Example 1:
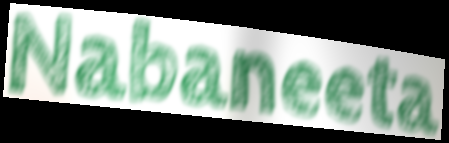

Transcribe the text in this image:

Nabaneeta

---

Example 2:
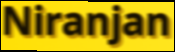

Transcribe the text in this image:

Niranjan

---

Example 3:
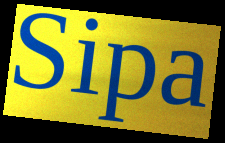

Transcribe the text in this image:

Sipa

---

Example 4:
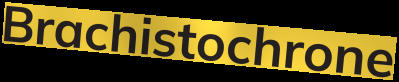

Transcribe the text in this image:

Brachistochrone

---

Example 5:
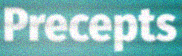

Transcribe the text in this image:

Precepts